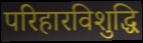
परिहारविशुद्धि